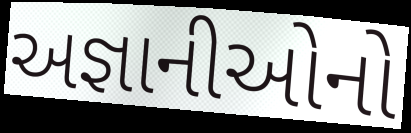
અજ્ઞાનીઓનો